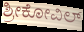
ಶ್ರೀಕೋವಿಲ್